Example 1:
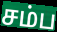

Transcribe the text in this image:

சம்ப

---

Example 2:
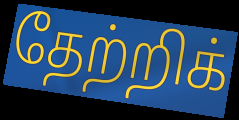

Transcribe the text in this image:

தேற்றிக்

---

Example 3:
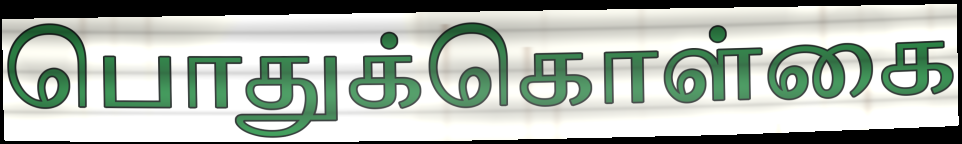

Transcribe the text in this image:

பொதுக்கொள்கை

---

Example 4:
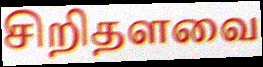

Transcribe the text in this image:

சிறிதளவை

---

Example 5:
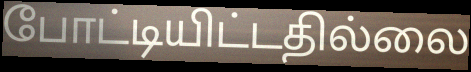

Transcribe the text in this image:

போட்டியிட்டதில்லை